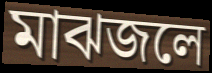
মাঝজলে